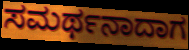
ಸಮರ್ಥನಾದಾಗ